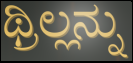
ಥ್ರಿಲ್ಲನ್ನು